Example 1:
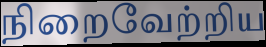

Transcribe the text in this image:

நிறைவேற்றிய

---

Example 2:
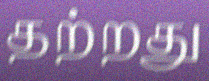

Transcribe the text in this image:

தற்றது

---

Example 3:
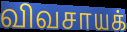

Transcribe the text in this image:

விவசாயக்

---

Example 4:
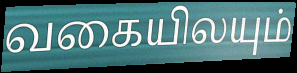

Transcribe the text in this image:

வகையிலயும்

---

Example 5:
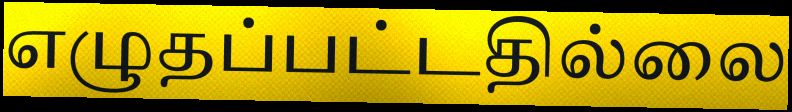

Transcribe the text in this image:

எழுதப்பட்டதில்லை